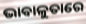
ଭାବାଳୁତାରେ